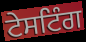
ਟੇਸਟਿੰਗ